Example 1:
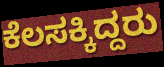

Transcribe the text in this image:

ಕೆಲಸಕ್ಕಿದ್ದರು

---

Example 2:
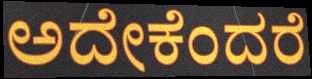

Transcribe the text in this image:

ಅದೇಕೆಂದರೆ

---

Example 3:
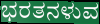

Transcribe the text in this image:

ಭರತನಳುವ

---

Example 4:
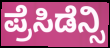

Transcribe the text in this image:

ಪ್ರೆಸಿಡೆನ್ಸಿ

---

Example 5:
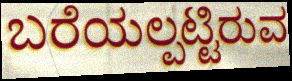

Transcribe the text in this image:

ಬರೆಯಲ್ಪಟ್ಟಿರುವ